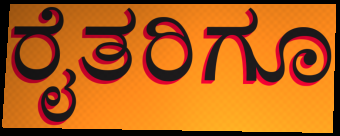
ರೈತರಿಗೂ